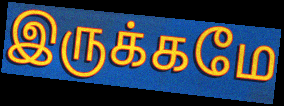
இருக்கமே